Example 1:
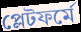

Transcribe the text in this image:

প্লেটফৰ্মে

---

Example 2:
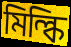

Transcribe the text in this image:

মিল্কি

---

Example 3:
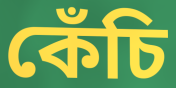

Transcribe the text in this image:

কেঁচি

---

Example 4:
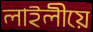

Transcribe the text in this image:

লাইলীয়ে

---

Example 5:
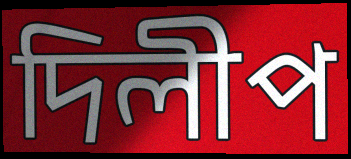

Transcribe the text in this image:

দিলীপ